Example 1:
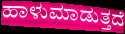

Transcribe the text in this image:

ಹಾಳುಮಾಡುತ್ತದೆ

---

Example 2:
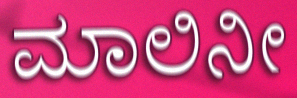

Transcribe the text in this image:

ಮಾಲಿನೀ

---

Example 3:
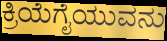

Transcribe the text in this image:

ಕ್ರಿಯೆಗೈಯುವನು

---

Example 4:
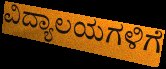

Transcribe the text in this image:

ವಿದ್ಯಾಲಯಗಳಿಗೆ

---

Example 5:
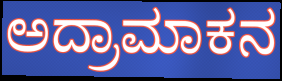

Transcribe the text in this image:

ಅದ್ರಾಮಾಕನ